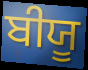
ਬੀਯੂ